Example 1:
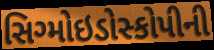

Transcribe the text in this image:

સિગ્મોઇડોસ્કોપીની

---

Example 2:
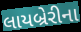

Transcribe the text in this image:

લાયબ્રેરીના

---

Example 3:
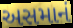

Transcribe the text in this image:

અસમાનં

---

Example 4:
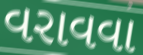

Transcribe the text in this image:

વરાવવા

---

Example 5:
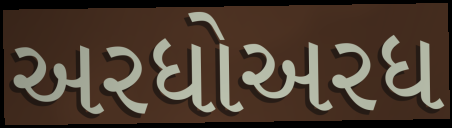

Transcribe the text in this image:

અરધોઅરધ